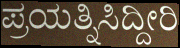
ಪ್ರಯತ್ನಿಸಿದ್ದೀರಿ